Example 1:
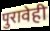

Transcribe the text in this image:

पुरावेही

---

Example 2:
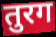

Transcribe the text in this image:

तुरग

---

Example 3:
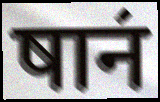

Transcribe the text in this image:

षानं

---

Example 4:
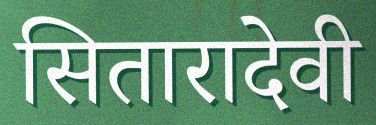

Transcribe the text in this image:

सितारादेवी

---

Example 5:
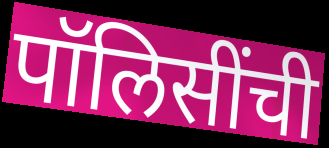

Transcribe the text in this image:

पॉलिसींची